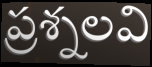
ప్రశ్నలవి